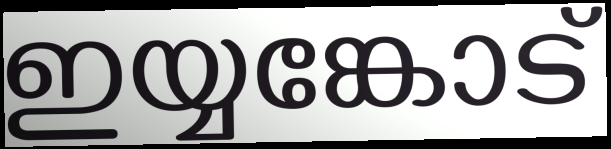
ഇയ്യങ്കോട്